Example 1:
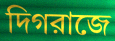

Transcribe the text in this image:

দিগরাজে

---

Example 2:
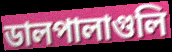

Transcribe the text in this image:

ডালপালাগুলি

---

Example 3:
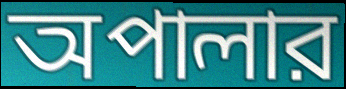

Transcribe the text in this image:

অপালার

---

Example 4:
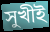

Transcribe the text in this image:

সুখীই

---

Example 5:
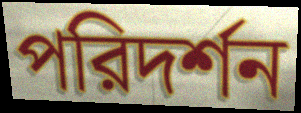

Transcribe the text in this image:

পরিদর্শন